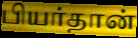
பியர்தான்